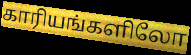
காரியங்களிலோ